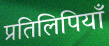
प्रतिलिपियाँ